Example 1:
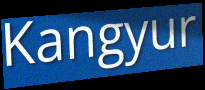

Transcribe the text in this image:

Kangyur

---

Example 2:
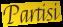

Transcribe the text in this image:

Partisi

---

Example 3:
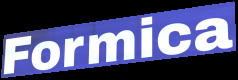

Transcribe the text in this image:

Formica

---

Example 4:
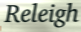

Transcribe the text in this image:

Releigh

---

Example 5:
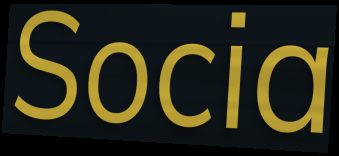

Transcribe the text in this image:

Socia